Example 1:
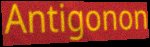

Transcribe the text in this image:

Antigonon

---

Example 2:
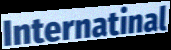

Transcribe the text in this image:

Internatinal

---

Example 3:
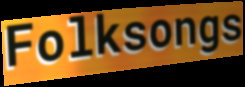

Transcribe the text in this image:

Folksongs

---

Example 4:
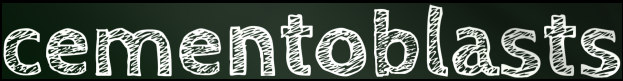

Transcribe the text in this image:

cementoblasts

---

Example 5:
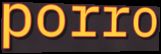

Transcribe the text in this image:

porro